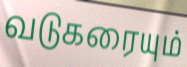
வடுகரையும்